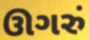
ઊગરું